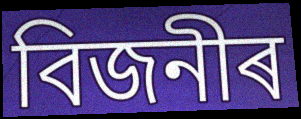
বিজনীৰ